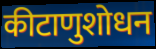
कीटाणुशोधन